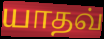
யாதவ்